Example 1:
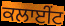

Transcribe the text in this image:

ਕਲਾਈਂਟ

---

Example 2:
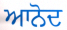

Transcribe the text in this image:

ਆਨੋਦ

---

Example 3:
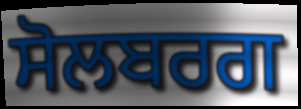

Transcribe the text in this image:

ਸੋਲਬਰਗ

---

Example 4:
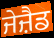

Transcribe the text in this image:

ਜੇਜ਼ੈਡ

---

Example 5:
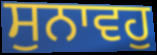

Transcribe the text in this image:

ਸੁਨਾਵਹੁ